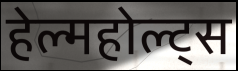
हेल्महोल्ट्स